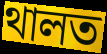
থালত